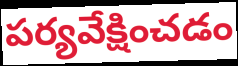
పర్యవేక్షించడం